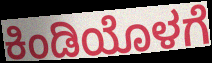
ಕಿಂಡಿಯೊಳಗೆ